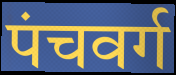
पंचवर्ग